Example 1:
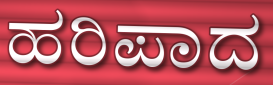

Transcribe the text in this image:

ಹರಿಪಾದ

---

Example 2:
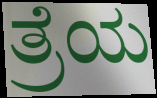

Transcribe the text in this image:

ತ್ರೆಯ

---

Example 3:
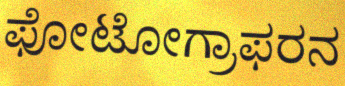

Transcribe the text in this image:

ಫೋಟೋಗ್ರಾಫರನ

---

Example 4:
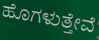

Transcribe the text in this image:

ಹೊಗಳುತ್ತೇವೆ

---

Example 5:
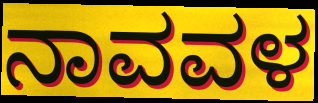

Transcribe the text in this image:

ನಾವವಳ